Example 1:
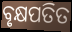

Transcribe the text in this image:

ବୃକ୍ଷପତିତ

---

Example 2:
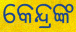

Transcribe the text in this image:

କେନ୍ଦ୍ରଙ୍କ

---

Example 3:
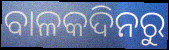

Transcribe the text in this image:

ବାଳକଦିନରୁ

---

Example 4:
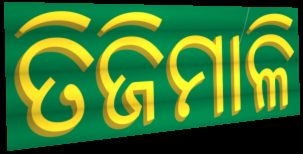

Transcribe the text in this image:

ତିଜିମାଳି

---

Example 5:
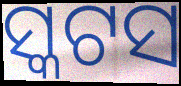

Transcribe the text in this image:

ସ୍କଟସ